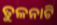
ତୁଳନାଟି